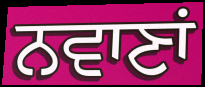
ਨਵਾਣਾਂ